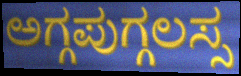
ಅಗ್ಗಪುಗ್ಗಲಸ್ಸ